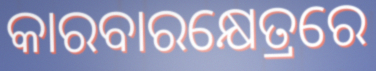
କାରବାରକ୍ଷେତ୍ରରେ